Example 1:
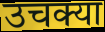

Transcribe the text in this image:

उचक्या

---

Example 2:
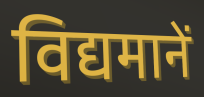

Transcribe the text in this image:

विद्यमानें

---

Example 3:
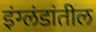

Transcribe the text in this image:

इंग्लंडांतील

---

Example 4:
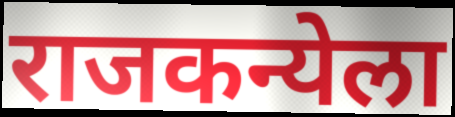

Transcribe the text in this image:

राजकन्येला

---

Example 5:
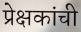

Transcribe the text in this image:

प्रेक्षकांची